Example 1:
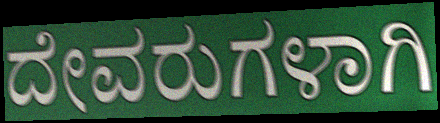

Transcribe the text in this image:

ದೇವರುಗಳಾಗಿ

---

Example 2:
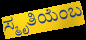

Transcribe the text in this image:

ಸ್ಮೃತಿಯೆಂಬ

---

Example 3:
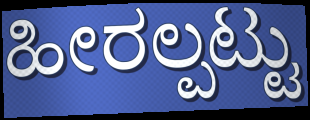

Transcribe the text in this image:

ಹೀರಲ್ಪಟ್ಟು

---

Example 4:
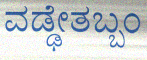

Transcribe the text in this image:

ವಡ್ಢೇತಬ್ಬಂ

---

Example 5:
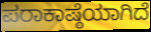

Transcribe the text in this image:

ಪರಾಕಾಷ್ಠೆಯಾಗಿದೆ